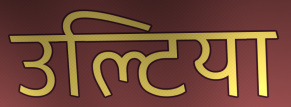
उल्टिया